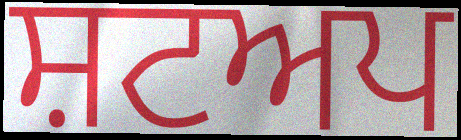
ਸ਼ਟਅਪ